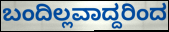
ಬಂದಿಲ್ಲವಾದ್ದರಿಂದ